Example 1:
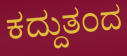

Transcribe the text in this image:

ಕದ್ದುತಂದ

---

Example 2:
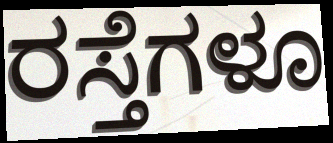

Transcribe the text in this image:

ರಸ್ತೆಗಳೂ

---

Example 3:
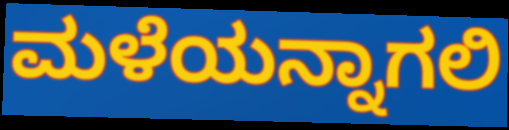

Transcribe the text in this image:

ಮಳೆಯನ್ನಾಗಲಿ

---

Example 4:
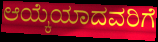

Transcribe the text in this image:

ಆಯ್ಕೆಯಾದವರಿಗೆ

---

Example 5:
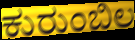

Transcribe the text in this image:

ಕುರುಂಬಿಲ